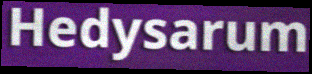
Hedysarum